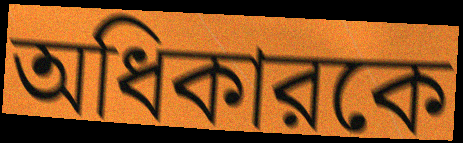
অধিকারকে